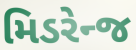
મિડરેન્જ